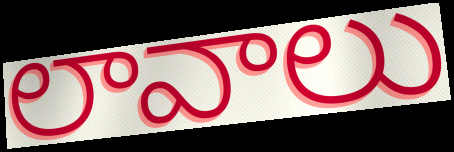
లావాలు